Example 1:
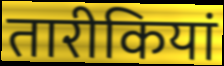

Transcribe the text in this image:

तारीकियां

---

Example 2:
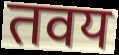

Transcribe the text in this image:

तवय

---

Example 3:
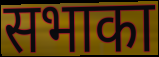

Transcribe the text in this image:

सभाका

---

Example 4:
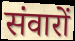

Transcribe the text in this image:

संवारों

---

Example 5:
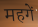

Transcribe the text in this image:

महगें